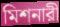
মিশনারী